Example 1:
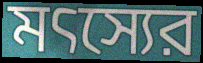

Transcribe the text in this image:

মৎস্যের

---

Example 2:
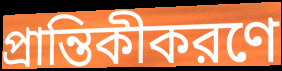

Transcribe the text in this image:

প্রান্তিকীকরণে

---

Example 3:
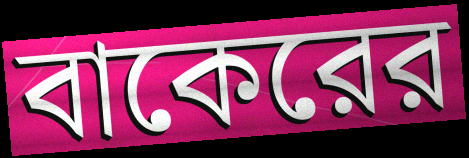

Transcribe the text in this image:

বাকেরের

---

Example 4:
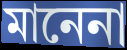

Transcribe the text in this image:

মানেনা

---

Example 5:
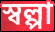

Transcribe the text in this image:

স্বল্পা